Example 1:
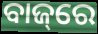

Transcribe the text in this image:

ବାଜ୍‌ରେ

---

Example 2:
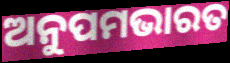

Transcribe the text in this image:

ଅନୁପମଭାରତ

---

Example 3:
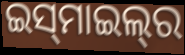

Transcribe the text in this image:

ଇସ୍‌ମାଇଲ୍‌ର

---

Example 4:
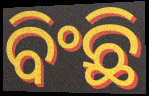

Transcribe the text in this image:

ବିଂଛି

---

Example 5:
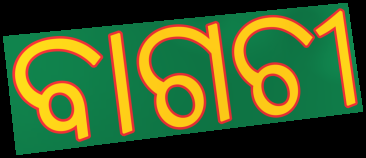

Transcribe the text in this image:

ବାଗଚୀ